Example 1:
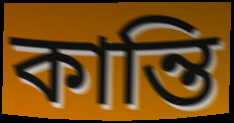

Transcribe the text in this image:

কান্তি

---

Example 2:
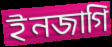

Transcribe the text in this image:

ইনজাগি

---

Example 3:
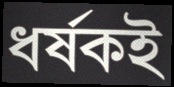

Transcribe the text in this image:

ধর্ষকই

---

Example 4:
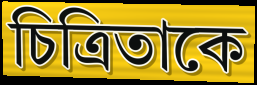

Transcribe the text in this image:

চিত্রিতাকে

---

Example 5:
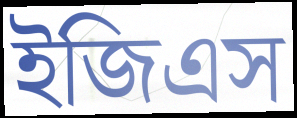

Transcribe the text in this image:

ইজিএস